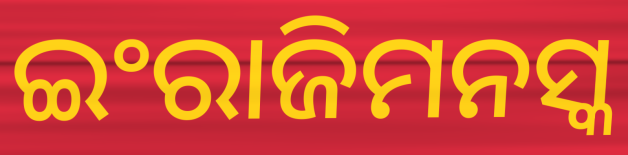
ଇଂରାଜିମନସ୍କ